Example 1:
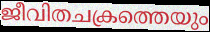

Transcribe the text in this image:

ജീവിതചക്രത്തെയും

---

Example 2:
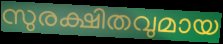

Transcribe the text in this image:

സുരക്ഷിതവുമായ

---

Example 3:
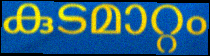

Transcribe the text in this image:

കുടമാറ്റം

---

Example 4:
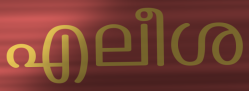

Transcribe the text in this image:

എലീശ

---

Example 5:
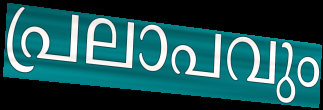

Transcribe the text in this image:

പ്രലാപവും